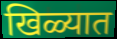
खिळ्यात